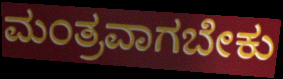
ಮಂತ್ರವಾಗಬೇಕು